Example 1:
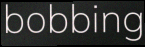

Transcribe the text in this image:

bobbing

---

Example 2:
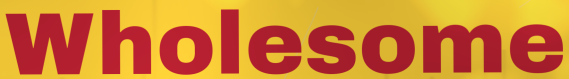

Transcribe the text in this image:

Wholesome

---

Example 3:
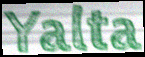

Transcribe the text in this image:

Yalta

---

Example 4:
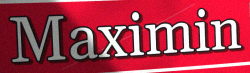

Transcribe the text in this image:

Maximin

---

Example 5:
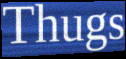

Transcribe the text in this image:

Thugs